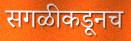
सगळीकडूनच